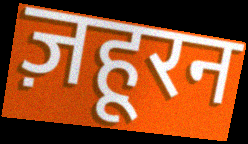
ज़हूरन